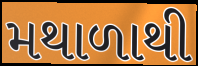
મથાળાથી